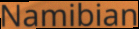
Namibian